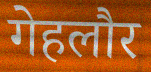
गेहलौर